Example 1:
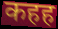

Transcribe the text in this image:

कहह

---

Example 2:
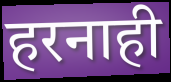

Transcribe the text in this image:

हरनाही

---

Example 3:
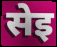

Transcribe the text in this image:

सेइ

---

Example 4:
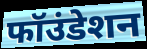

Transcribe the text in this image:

फॉउंडेशन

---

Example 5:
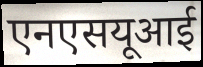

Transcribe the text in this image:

एनएसयूआई